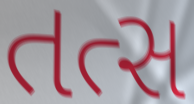
તત્સ